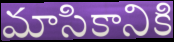
మాసికానికి